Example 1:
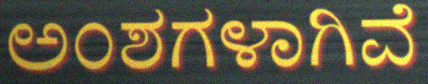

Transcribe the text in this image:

ಅಂಶಗಳಾಗಿವೆ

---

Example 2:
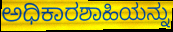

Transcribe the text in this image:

ಅಧಿಕಾರಶಾಹಿಯನ್ನು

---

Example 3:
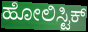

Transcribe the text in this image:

ಹೋಲಿಸ್ಟಿಕ್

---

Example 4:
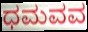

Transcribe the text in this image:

ಧಮವವ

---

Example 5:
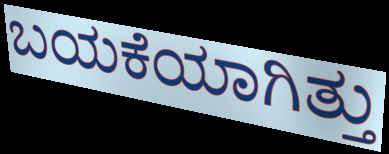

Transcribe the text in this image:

ಬಯಕೆಯಾಗಿತ್ತು